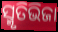
ସ୍ମୃତିଭିଜା